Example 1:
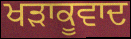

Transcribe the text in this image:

ਖੜਾਕੂਵਾਦ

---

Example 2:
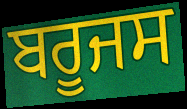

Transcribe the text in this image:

ਬਰੂਜਸ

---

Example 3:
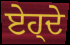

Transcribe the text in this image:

ਏਹ੍ਦੇ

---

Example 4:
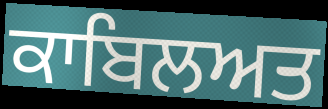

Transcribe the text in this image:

ਕਾਬਿਲਅਤ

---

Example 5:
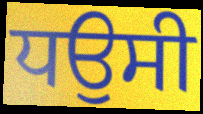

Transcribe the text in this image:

ਧਉਸੀ